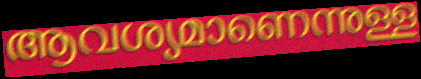
ആവശ്യമാണെന്നുള്ള